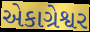
એકાગ્રેશ્વર